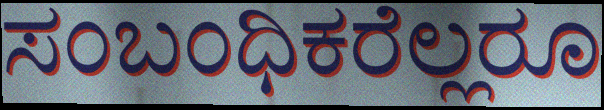
ಸಂಬಂಧಿಕರೆಲ್ಲರೂ